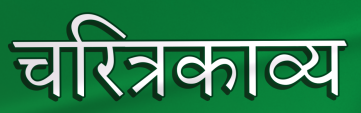
चरित्रकाव्य